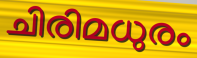
ചിരിമധുരം